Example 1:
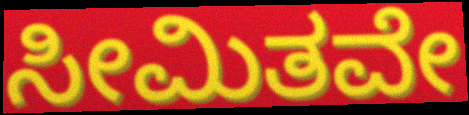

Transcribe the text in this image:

ಸೀಮಿತವೇ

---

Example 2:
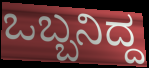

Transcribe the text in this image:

ಒಬ್ಬನಿದ್ದ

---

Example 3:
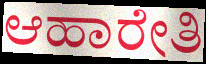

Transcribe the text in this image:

ಆಹಾರೇತಿ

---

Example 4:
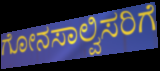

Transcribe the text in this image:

ಗೋನಸಾಲ್ವಿಸರಿಗೆ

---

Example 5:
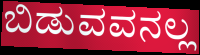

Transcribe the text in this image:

ಬಿಡುವವನಲ್ಲ